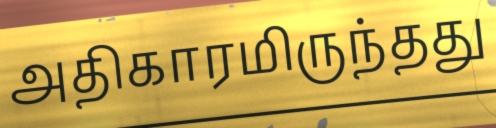
அதிகாரமிருந்தது